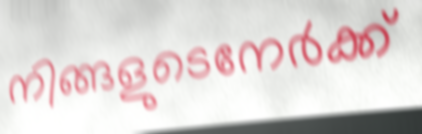
നിങ്ങളുടെനേർക്ക്